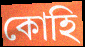
কোহি